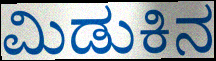
ಮಿಡುಕಿನ